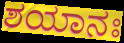
ಶಯಾನಃ